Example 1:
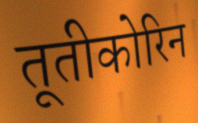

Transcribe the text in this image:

तूतीकोरिन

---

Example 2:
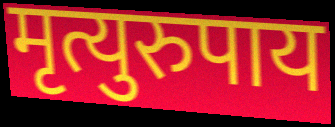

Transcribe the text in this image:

मृत्युरुपाय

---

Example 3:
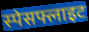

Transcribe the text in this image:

स्पेसफ्लाइट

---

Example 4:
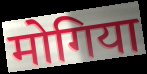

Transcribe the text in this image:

मोगिया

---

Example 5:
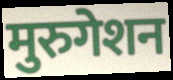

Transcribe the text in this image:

मुरुगेशन